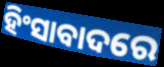
ହିଂସାବାଦରେ